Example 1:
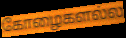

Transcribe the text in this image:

கோழைகளல்ல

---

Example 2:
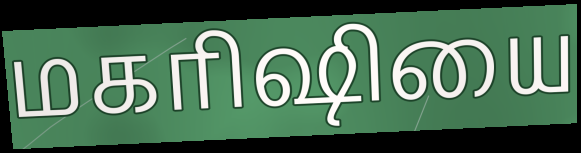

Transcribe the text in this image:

மகரிஷியை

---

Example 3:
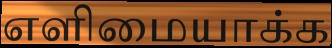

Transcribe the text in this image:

எளிமையாக்க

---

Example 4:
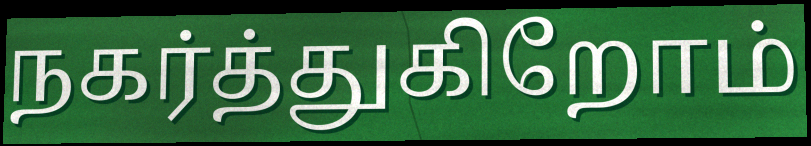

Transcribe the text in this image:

நகர்த்துகிறோம்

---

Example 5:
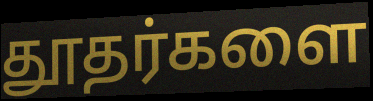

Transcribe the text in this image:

தூதர்களை